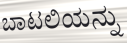
ಬಾಟಲಿಯನ್ನು